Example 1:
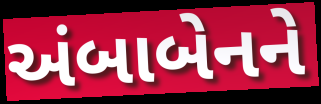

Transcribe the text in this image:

અંબાબેનને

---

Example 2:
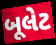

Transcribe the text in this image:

બૂલેટ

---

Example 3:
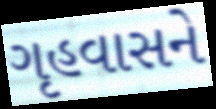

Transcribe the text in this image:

ગૃહવાસને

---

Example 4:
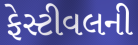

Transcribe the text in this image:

ફેસ્ટીવલની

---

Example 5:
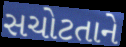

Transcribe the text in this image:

સચોટતાને